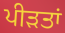
ਪੀਡ਼ਤਾਂ